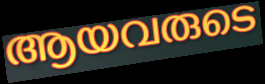
ആയവരുടെ